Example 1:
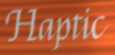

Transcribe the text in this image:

Haptic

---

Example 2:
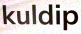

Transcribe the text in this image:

kuldip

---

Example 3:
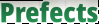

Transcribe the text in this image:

Prefects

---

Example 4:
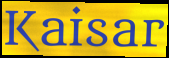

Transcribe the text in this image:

Kaisar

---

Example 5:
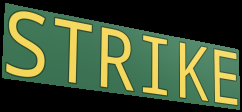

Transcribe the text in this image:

STRIKE